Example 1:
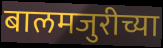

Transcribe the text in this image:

बालमजुरीच्या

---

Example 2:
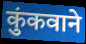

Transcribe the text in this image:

कुंकवाने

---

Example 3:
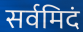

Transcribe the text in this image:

सर्वमिदं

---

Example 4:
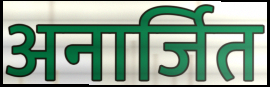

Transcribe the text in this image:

अनार्जित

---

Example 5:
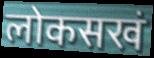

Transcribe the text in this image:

लोकसखं